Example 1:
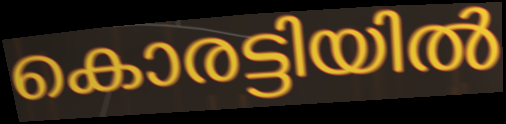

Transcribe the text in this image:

കൊരട്ടിയിൽ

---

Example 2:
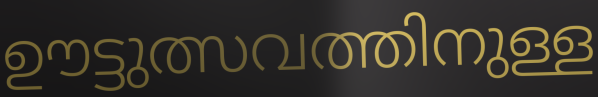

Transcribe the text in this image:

ഊട്ടുത്സവത്തിനുള്ള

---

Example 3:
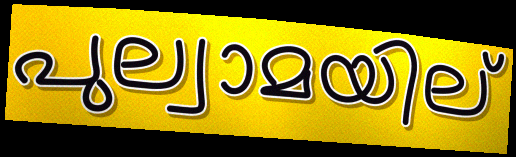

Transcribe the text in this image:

പുല്വാമയില്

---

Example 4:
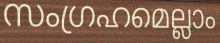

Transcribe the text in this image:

സംഗ്രഹമെല്ലാം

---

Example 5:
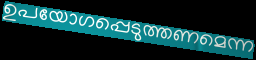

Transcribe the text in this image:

ഉപയോഗപ്പെടുത്തണമെന്ന